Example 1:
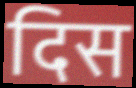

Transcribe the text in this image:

दिस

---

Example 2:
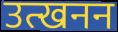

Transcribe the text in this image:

उत्खनन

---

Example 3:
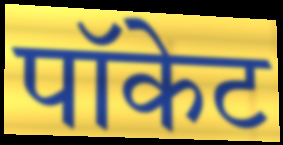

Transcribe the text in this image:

पॉकेट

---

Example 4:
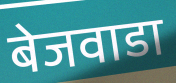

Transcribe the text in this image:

बेजवाडा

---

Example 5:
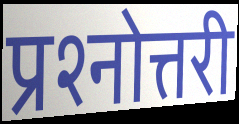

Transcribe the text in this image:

प्रश्नोत्तरी